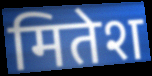
मितेश